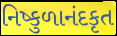
નિષ્કુળાનંદકૃત